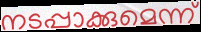
നടപ്പാക്കുമെന്ന്